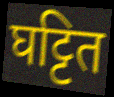
घट्टित